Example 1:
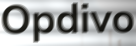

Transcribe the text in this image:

Opdivo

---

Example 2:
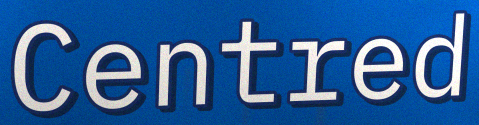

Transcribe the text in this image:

Centred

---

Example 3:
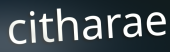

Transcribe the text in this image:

citharae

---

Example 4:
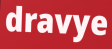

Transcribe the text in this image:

dravye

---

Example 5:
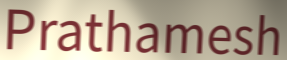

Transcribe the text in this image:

Prathamesh